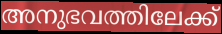
അനുഭവത്തിലേക്ക്